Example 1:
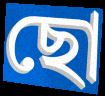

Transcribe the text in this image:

ছো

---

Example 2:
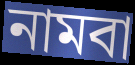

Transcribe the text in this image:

নামবা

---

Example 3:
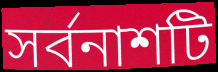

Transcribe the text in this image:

সর্বনাশটি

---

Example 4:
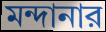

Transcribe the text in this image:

মন্দানার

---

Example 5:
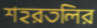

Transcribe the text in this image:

শহরতলির